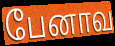
பேனாவ